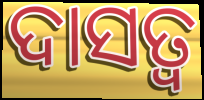
ଦାସତ୍ୱ